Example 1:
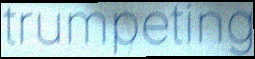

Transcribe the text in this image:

trumpeting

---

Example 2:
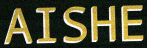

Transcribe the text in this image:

AISHE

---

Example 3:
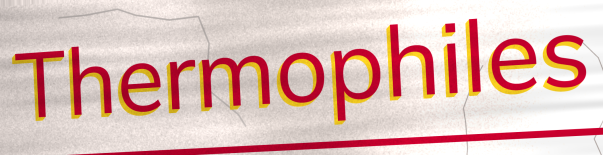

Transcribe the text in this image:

Thermophiles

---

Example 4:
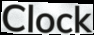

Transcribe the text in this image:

Clock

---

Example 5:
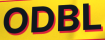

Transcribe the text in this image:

ODBL